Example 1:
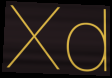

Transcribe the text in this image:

Xd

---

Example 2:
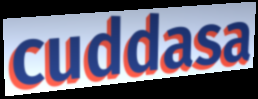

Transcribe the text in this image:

cuddasa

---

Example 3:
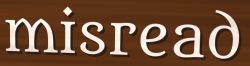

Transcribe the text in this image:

misread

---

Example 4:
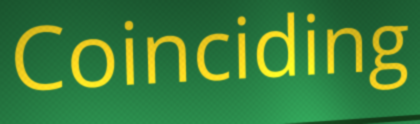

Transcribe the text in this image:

Coinciding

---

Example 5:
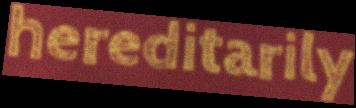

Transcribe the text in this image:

hereditarily